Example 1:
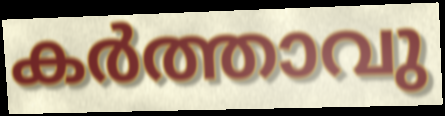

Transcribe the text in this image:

കർത്താവു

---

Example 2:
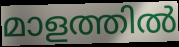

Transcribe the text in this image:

മാളത്തിൽ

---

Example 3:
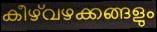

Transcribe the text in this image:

കീഴ്‌വഴക്കങ്ങളും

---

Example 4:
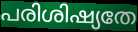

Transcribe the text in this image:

പരിശിഷ്യതേ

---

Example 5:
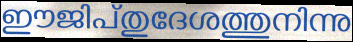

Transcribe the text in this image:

ഈജിപ്തുദേശത്തുനിന്നു